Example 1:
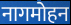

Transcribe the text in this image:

नागमोहन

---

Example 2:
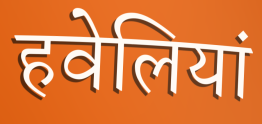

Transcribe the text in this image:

हवेलियां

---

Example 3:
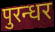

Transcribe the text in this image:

पुरन्धर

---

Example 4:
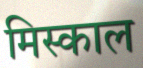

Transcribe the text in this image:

मिस्काल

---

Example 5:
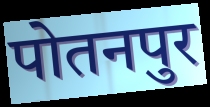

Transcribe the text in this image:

पोतनपुर